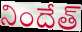
నిందేత్